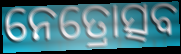
ନେତ୍ରୋତ୍ସବ